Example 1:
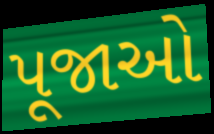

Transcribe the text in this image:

પૂજાઓ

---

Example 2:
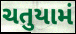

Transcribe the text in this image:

ચતુયામં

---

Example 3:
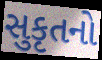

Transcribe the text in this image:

સુકૃતનો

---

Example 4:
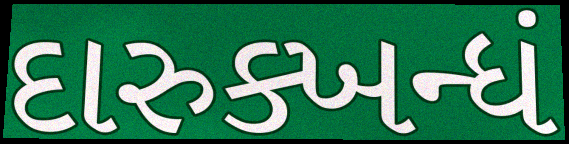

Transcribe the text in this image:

દારુક્ખન્ધં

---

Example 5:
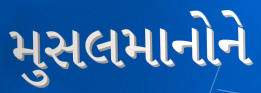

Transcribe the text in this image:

મુસલમાનોને